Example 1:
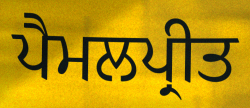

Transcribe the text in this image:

ਪੈਮਲਪ੍ਰੀਤ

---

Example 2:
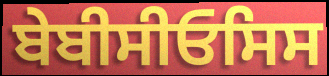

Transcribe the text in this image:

ਬੇਬੀਸੀਓਸਿਸ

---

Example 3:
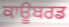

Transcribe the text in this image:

ਕਾਊਬਰਡ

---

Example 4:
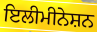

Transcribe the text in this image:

ਇਲੀਮੀਨੇਸ਼ਨ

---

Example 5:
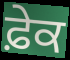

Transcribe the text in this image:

ਫ਼ੇਕ